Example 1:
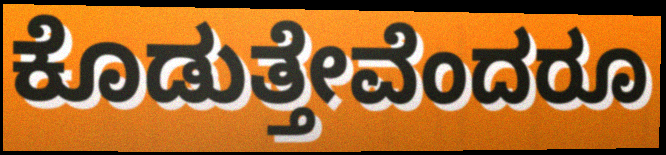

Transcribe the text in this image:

ಕೊಡುತ್ತೇವೆಂದರೂ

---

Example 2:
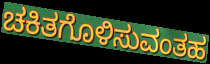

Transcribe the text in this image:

ಚಕಿತಗೊಳಿಸುವಂತಹ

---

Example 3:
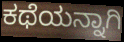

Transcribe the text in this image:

ಕಥೆಯನ್ನಾಗಿ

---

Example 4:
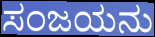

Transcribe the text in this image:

ಸಂಜಯನು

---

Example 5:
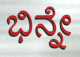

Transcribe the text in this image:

ಭಿನ್ನೇ